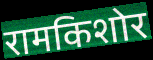
रामकिशोर